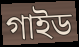
গাইড